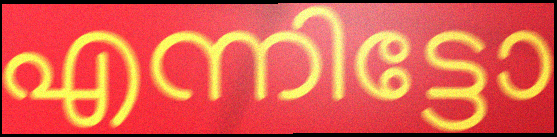
എന്നിട്ടോ